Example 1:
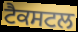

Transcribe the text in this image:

ਟੈਕਸਟਲ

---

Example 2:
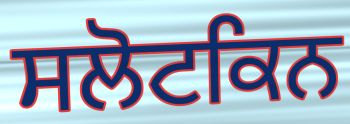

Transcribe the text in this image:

ਸਲੋਟਕਿਨ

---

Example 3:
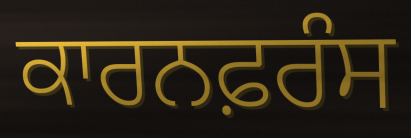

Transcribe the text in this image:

ਕਾਰਨਫ਼ਰੰਸ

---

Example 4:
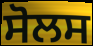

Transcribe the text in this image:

ਸੋਲਸ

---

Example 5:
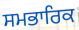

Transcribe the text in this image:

ਸਮਭਾਰਿਕ